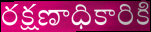
రక్షణాధికారికి